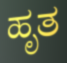
ಹೃತ